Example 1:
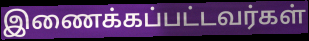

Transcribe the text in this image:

இணைக்கப்பட்டவர்கள்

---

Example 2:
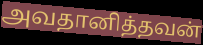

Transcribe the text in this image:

அவதானித்தவன்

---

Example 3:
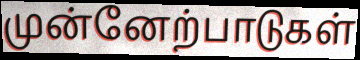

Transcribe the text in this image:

முன்னேற்பாடுகள்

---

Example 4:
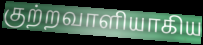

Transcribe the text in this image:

குற்றவாளியாகிய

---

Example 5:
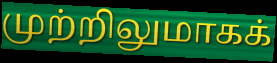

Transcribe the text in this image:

முற்றிலுமாகக்